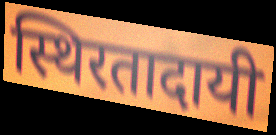
स्थिरतादायी